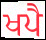
ਖਪੈ